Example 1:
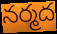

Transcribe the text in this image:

నర్మద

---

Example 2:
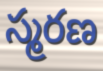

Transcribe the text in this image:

స్మరణ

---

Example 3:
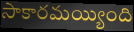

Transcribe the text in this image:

సాకారమయ్యింది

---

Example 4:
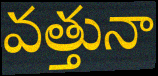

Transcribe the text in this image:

వత్తునా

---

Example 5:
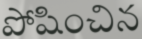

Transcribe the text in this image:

పోషించిన